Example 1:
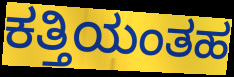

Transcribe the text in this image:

ಕತ್ತಿಯಂತಹ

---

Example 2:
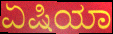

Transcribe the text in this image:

ಏಷಿಯಾ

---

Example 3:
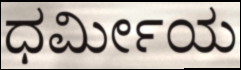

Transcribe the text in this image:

ಧರ್ಮೀಯ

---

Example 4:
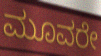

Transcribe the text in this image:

ಮೂವರೇ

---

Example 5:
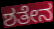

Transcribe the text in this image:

ಶತೇನ